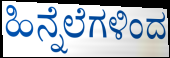
ಹಿನ್ನೆಲೆಗಳಿಂದ